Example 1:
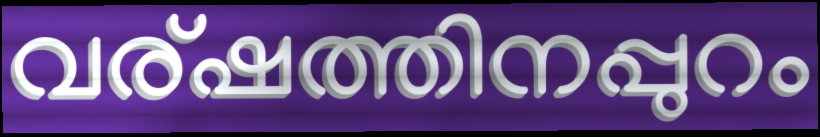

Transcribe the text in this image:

വര്ഷത്തിനപ്പുറം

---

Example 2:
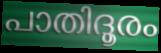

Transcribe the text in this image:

പാതിദൂരം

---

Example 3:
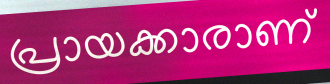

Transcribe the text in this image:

പ്രായക്കാരാണ്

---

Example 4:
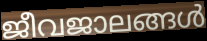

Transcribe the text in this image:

ജീവജാലങ്ങൾ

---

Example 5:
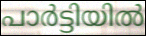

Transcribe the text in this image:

പാർട്ടിയിൽ